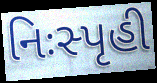
નિઃસ્પૃહી